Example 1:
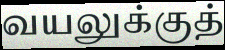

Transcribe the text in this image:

வயலுக்குத்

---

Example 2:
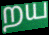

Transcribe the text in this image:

றய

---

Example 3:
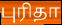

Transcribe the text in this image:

புரிதா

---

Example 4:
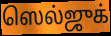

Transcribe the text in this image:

ஸெல்ஜுக்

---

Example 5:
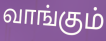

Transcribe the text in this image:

வாங்கும்